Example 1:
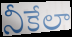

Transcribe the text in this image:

నీకేలా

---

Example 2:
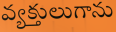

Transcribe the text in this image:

వ్యక్తులుగాను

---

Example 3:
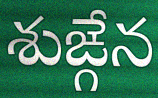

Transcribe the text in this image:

శుఙ్గేన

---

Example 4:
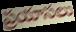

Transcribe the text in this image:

ప్రయాసలు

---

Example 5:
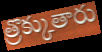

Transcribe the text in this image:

త్రొక్కుతారు